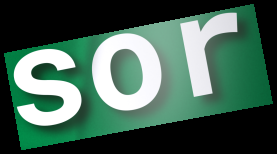
sor